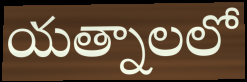
యత్నాలలో